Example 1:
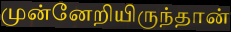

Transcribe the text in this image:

முன்னேறியிருந்தான்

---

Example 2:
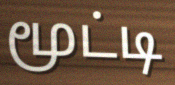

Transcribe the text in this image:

மூட்டி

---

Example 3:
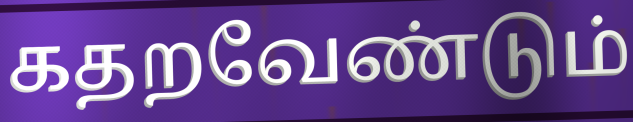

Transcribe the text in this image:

கதறவேண்டும்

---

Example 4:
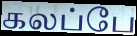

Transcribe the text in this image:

கலப்பே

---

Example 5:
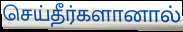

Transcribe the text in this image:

செய்தீர்களானால்